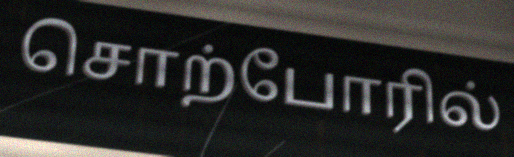
சொற்போரில்